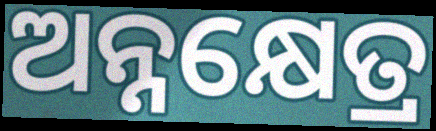
ଅନ୍ନକ୍ଷେତ୍ର